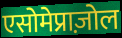
एसोमेप्राज़ोल